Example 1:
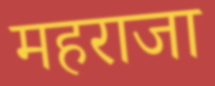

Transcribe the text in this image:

महराजा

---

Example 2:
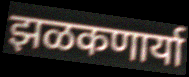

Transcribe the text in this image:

झळकणार्या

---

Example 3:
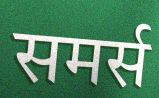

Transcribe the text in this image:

समर्स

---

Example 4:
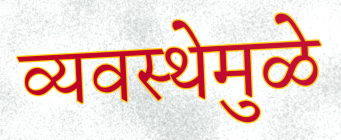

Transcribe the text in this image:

व्यवस्थेमुळे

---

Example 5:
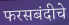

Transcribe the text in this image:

फरसबंदीचे